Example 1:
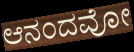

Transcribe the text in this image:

ಆನಂದವೋ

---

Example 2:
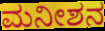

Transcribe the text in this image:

ಮನೀಶನ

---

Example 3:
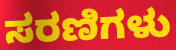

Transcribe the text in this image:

ಸರಣಿಗಳು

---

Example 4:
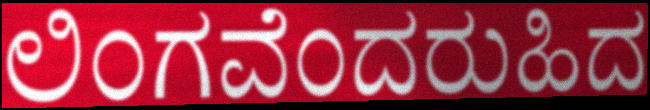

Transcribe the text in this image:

ಲಿಂಗವೆಂದರುಹಿದ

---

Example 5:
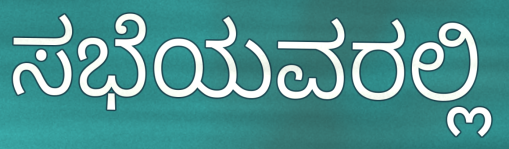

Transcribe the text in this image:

ಸಭೆಯವರಲ್ಲಿ